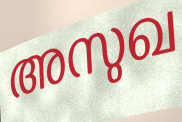
അസുഖ